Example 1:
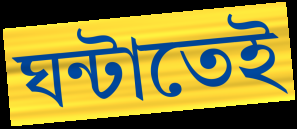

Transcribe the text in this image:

ঘন্টাতেই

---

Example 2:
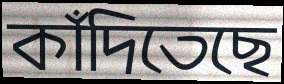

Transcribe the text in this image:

কাঁদিতেছে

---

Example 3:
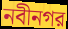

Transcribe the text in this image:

নবীনগর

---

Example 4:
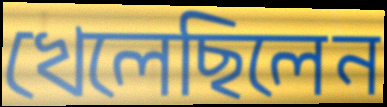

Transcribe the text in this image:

খেলেছিলেন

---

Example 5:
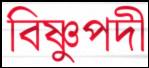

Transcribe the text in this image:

বিষ্ণুপদী